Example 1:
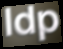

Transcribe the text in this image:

ldp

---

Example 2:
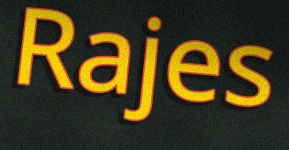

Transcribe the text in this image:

Rajes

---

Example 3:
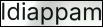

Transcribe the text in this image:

Idiappam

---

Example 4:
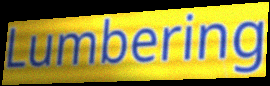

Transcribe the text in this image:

Lumbering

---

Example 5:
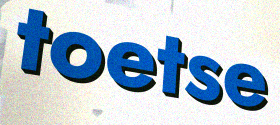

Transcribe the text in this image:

toetse